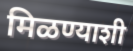
मिळण्याशी